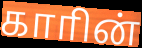
காரின்